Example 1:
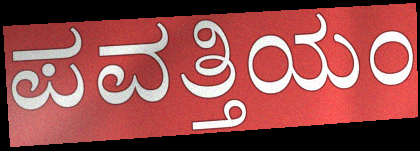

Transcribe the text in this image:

ಪವತ್ತಿಯಂ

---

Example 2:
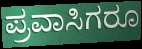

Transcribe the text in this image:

ಪ್ರವಾಸಿಗರೂ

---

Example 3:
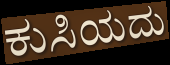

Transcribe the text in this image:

ಕುಸಿಯದು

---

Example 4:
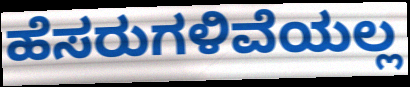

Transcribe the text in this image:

ಹೆಸರುಗಳಿವೆಯಲ್ಲ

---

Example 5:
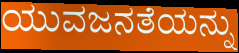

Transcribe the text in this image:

ಯುವಜನತೆಯನ್ನು